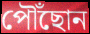
পৌঁছোন